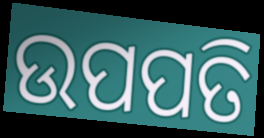
ଉପପତି